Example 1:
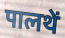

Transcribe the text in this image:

पालथें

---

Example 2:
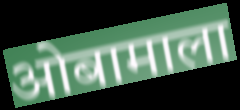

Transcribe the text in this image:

ओबामाला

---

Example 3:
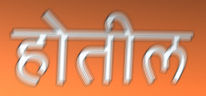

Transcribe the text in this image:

होतील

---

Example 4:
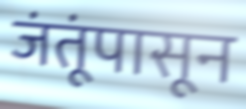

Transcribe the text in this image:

जंतूंपासून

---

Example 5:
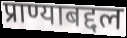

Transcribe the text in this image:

प्राण्याबद्दल